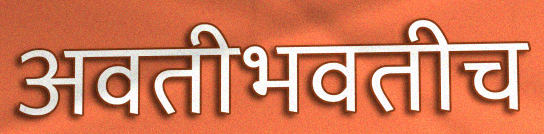
अवतीभवतीच